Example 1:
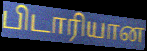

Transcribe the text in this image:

பிடாரியான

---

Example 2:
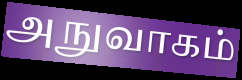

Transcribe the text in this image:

அநுவாகம்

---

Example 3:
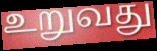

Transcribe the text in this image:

உறுவது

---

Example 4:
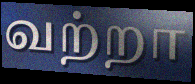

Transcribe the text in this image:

வற்றா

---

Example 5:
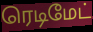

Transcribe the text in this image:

ரெடிமேட்